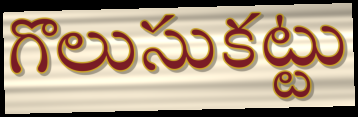
గొలుసుకట్టు